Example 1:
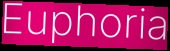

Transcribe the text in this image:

Euphoria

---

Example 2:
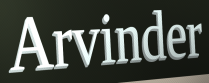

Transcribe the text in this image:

Arvinder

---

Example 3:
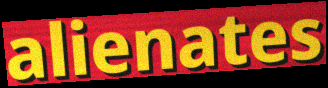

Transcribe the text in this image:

alienates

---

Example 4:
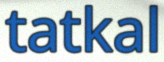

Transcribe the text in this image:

tatkal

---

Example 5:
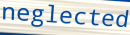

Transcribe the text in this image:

neglected